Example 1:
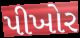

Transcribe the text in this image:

પીખોર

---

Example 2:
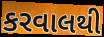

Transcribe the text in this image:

કરવાલથી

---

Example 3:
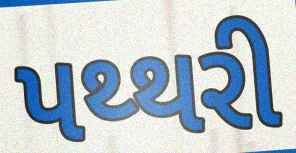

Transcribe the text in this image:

પથ્થરી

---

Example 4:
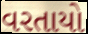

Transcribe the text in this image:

વરતાયો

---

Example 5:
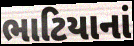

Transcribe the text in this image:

ભાટિયાનાં